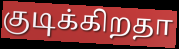
குடிக்கிறதா